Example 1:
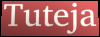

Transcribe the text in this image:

Tuteja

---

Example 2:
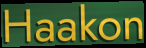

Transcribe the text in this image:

Haakon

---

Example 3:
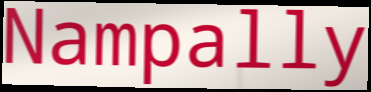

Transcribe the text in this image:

Nampally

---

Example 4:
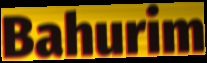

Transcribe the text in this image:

Bahurim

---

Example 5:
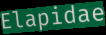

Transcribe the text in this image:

Elapidae